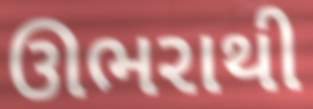
ઊભરાથી